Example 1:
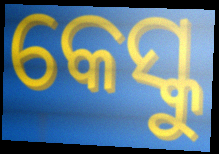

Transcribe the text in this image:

କେସ୍କୁ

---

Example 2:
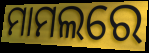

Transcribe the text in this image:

ମାମଲରେ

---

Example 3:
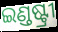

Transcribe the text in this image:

ଇଣ୍ଡଷ୍ଟ୍ରୀ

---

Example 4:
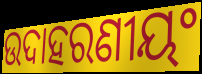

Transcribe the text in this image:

ଉଦାହରଣୀୟଂ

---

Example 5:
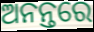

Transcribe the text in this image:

ଅନନ୍ତରେ